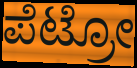
ಪೆಟ್ರೋ